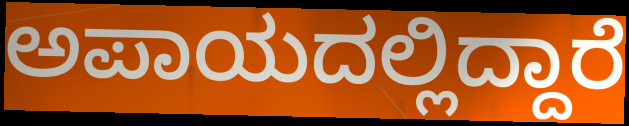
ಅಪಾಯದಲ್ಲಿದ್ದಾರೆ